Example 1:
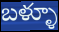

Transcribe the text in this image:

బళ్ళూ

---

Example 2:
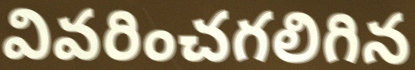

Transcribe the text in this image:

వివరించగలిగిన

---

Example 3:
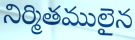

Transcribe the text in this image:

నిర్మితములైన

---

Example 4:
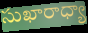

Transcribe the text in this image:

సుఖారాధ్యా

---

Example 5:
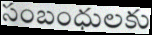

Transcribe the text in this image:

సంబంధులకు